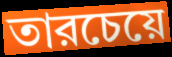
তারচেয়ে